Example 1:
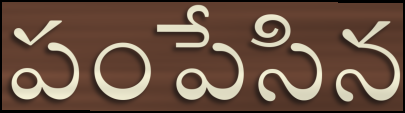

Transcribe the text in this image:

పంపేసిన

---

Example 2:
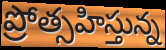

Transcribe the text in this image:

ప్రోత్సహిస్తున్న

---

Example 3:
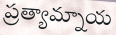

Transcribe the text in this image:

ప్రత్యామ్నాయ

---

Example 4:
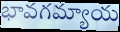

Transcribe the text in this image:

భావగమ్యాయ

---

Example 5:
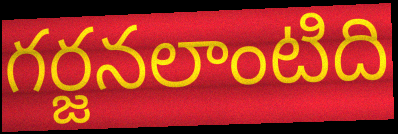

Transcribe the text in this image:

గర్జనలాంటిది